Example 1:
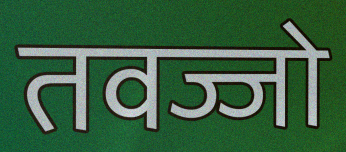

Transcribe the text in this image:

तवज्जो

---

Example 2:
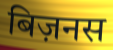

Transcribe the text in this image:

बिज़नस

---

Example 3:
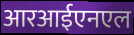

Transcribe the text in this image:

आरआईएनएल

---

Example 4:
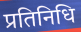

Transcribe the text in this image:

प्रतिनिधि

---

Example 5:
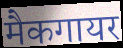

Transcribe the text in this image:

मैकगायर